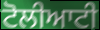
ਟੋਲੀਆਟੀ